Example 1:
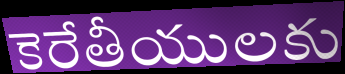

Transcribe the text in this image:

కెరేతీయులకు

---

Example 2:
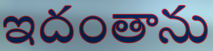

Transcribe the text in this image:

ఇదంతాను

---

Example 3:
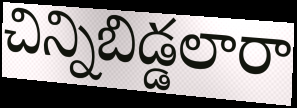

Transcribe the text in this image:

చిన్నిబిడ్డలారా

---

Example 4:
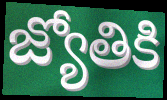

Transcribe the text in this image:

జ్యోతికి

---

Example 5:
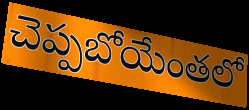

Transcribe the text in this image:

చెప్పబోయేంతలో